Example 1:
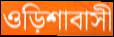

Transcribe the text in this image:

ওড়িশাবাসী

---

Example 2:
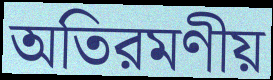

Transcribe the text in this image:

অতিরমণীয়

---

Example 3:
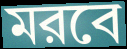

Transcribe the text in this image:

মরবে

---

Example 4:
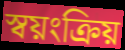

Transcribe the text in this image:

স্বয়ংক্রিয়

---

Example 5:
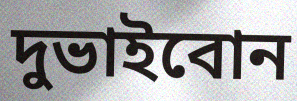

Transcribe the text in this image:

দুভাইবোন